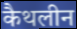
कैथलीन